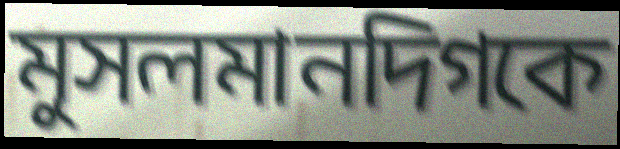
মুসলমানদিগকে